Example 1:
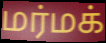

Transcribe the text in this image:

மர்மக்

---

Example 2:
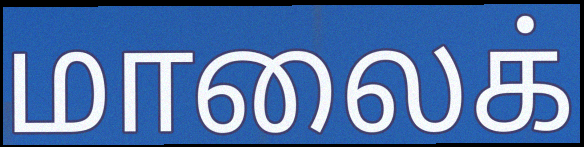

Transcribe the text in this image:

மாலைக்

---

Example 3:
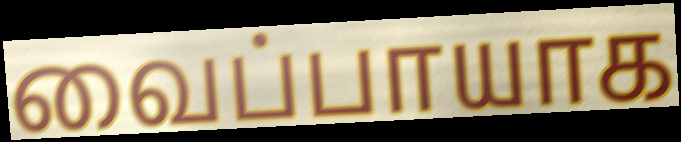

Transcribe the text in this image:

வைப்பாயாக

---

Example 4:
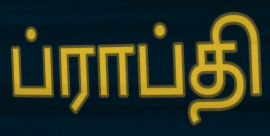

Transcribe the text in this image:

ப்ராப்தி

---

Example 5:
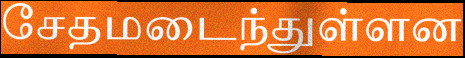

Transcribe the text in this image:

சேதமடைந்துள்ளன